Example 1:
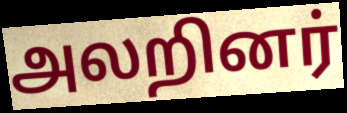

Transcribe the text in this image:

அலறினர்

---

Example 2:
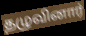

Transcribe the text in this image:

தழுவினார்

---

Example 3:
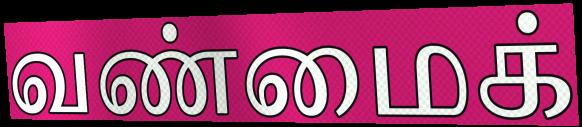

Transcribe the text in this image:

வண்மைக்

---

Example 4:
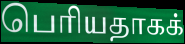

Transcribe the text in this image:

பெரியதாகக்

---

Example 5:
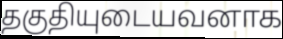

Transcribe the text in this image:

தகுதியுடையவனாக